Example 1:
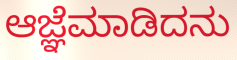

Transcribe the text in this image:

ಆಜ್ಞೆಮಾಡಿದನು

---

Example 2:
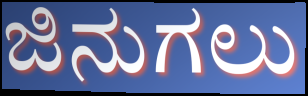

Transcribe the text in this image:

ಜಿನುಗಲು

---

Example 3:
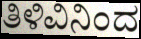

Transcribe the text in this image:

ತಿಳಿವಿನಿಂದ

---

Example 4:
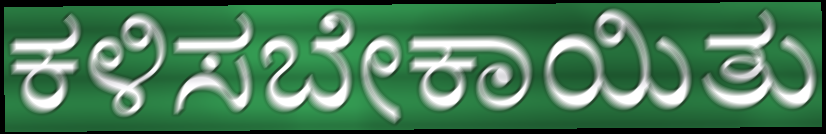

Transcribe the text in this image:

ಕಳಿಸಬೇಕಾಯಿತು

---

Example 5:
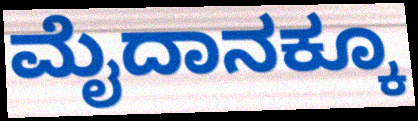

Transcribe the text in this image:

ಮೈದಾನಕ್ಕೂ